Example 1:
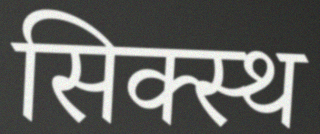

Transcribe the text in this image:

सिक्स्थ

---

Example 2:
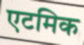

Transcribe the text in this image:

एटमिक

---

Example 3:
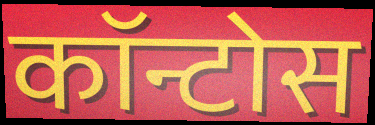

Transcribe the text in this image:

कॉन्टोस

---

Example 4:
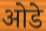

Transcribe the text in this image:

ओडे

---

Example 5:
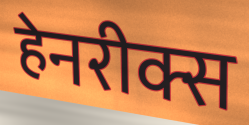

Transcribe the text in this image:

हेनरीक्स